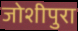
जोशीपुरा